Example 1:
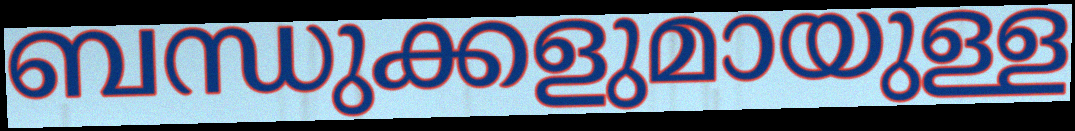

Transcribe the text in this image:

ബന്ധുക്കളുമായുള്ള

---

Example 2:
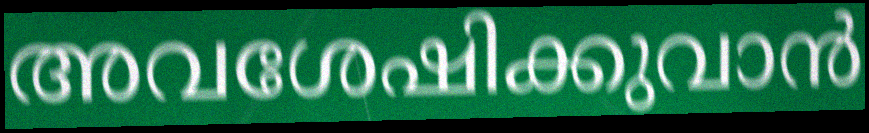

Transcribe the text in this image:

അവശേഷിക്കുവാൻ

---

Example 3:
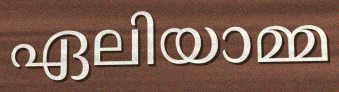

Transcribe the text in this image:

ഏലിയാമ്മ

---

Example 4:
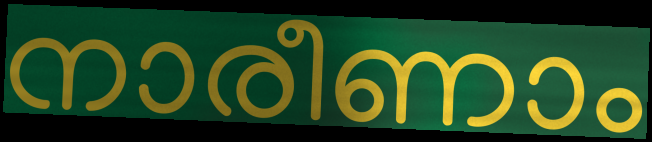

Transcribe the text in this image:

നാരീണാം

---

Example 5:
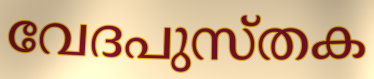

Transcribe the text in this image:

വേദപുസ്തക